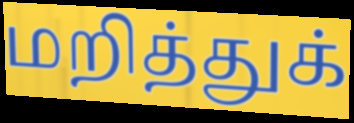
மறித்துக்